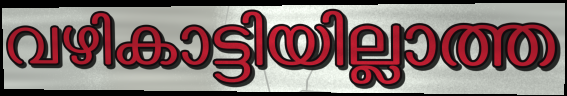
വഴികാട്ടിയില്ലാത്ത